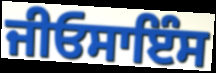
ਜੀਓਸਾਇੰਸ